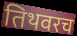
तिथवरच